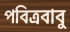
পবিত্রবাবু